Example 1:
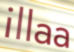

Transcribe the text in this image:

illaa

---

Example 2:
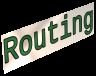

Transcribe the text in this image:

Routing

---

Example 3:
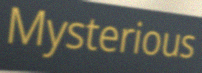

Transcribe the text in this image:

Mysterious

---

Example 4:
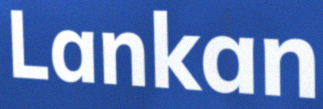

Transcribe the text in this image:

Lankan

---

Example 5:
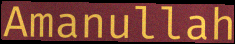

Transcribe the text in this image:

Amanullah